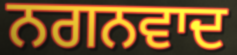
ਨਗਨਵਾਦ